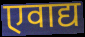
एवाद्य